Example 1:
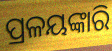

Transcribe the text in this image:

ପ୍ରଳୟଙ୍କାରି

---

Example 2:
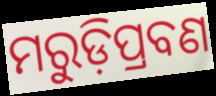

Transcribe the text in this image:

ମରୁଡ଼ିପ୍ରବଣ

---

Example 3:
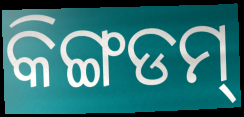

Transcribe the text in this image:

କିଙ୍ଗଡମ୍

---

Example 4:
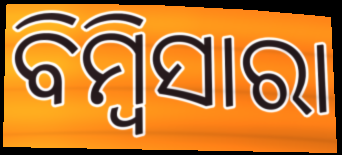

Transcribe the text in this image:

ବିମ୍ବିସାରା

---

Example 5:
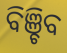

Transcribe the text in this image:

ବିଞ୍ଚିବ